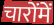
चारोंमें